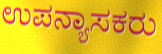
ಉಪನ್ಯಾಸಕರು